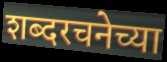
शब्दरचनेच्या